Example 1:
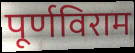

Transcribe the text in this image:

पूर्णविराम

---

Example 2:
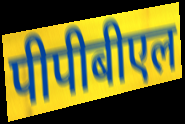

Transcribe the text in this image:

पीपीबीएल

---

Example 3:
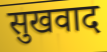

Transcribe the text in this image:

सुखवाद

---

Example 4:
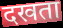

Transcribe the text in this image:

दखता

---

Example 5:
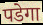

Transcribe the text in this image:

पडेगा